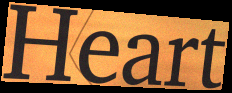
Heart